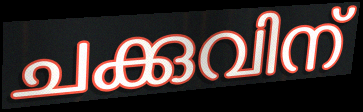
ചക്കുവിന്